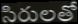
సిరులతో